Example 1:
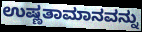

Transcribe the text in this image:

ಉಷ್ಣತಾಮಾನವನ್ನು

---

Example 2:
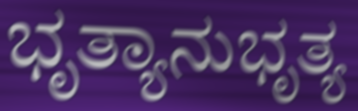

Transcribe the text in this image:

ಭೃತ್ಯಾನುಭೃತ್ಯ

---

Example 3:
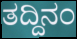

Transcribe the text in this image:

ತದ್ದಿನಂ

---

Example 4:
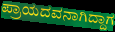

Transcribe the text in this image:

ಪ್ರಾಯದವನಾಗಿದ್ದಾಗ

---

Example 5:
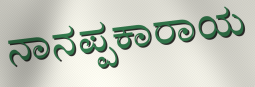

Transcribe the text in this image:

ನಾನಪ್ಪಕಾರಾಯ